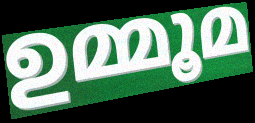
ഉമ്മൂമ